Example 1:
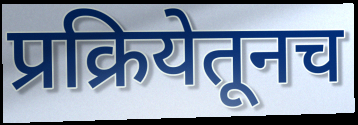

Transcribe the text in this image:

प्रक्रियेतूनच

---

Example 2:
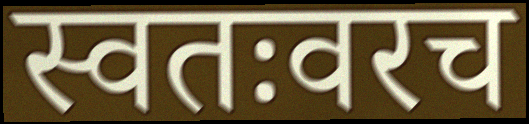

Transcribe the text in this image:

स्वतःवरच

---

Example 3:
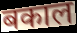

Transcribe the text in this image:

बकाल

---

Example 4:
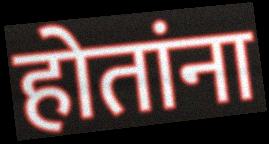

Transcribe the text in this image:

होतांना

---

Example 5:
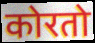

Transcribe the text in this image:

कोरतो